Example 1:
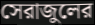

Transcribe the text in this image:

সেরাজুলের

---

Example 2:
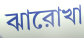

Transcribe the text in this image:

ঝারোখা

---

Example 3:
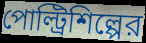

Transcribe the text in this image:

পোল্ট্রিশিল্পের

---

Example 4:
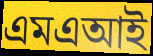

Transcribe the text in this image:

এমএআই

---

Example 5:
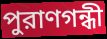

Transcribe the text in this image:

পুরাণগন্ধী